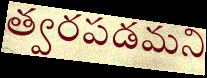
త్వరపడమని